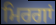
ਮਿਰਗਾਂ